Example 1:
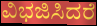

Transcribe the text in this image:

ವಿಭಜಿಸಿದರೆ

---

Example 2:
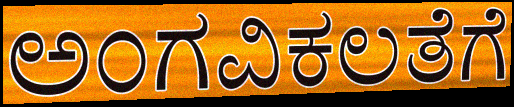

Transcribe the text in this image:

ಅಂಗವಿಕಲತೆಗೆ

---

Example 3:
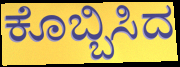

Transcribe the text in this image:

ಕೊಬ್ಬಿಸಿದ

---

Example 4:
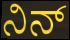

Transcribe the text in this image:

ನಿನ್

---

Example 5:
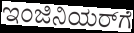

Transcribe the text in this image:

ಇಂಜಿನಿಯರ್‌ಗೆ